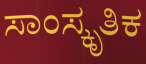
ಸಾಂಸ್ಕೃತಿಕ